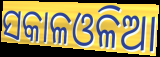
ସକାଳଓଳିଆ